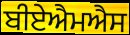
ਬੀਏਐਮਐਸ